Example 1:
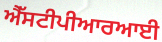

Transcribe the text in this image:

ਐੱਸਟੀਪੀਆਰਆਈ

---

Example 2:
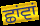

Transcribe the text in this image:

ਛਾਂਵਾਂ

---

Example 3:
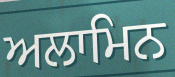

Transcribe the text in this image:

ਅਲਾਮਿਨ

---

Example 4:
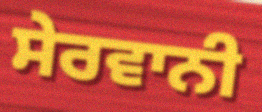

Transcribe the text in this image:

ਸੇਰਵਾਨੀ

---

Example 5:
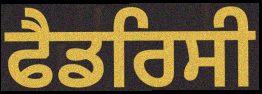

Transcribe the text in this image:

ਫੈਡਰਿਸੀ